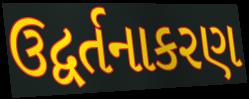
ઉદ્વર્તનાકરણ